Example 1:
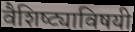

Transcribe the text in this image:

वैशिष्ट्याविषयी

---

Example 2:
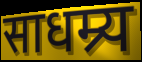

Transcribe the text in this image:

साधम्र्य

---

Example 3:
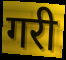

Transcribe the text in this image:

गरी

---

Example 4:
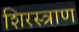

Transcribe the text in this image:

शिरस्त्राण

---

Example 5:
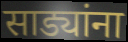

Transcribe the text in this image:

साड्यांना